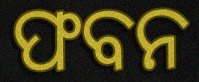
ଫବନ